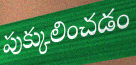
పుక్కులించడం